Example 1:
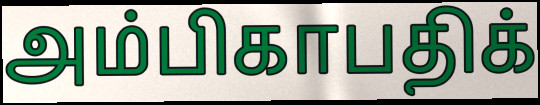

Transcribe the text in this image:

அம்பிகாபதிக்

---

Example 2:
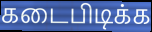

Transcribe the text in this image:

கடைபிடிக்க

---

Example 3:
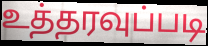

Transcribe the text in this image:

உத்தரவுப்படி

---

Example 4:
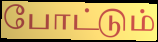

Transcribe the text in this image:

போட்டும்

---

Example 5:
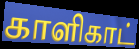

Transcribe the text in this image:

காளிகாட்